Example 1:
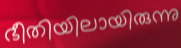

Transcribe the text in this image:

ഭീതിയിലായിരുന്നു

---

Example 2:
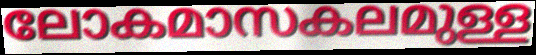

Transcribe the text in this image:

ലോകമാസകലമുള്ള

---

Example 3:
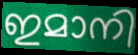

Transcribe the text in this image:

ഇമാനി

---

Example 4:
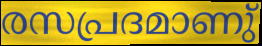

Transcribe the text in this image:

രസപ്രദമാണു്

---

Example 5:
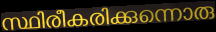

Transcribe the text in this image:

സ്ഥിരീകരിക്കുന്നൊരു